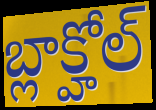
బ్లాక్హోల్